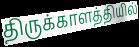
திருக்காளத்தியில்